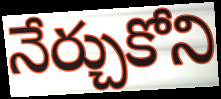
నేర్చుకోని